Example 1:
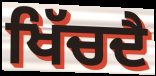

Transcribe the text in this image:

ਖਿੱਚਦੈ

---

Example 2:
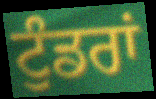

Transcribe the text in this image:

ਟੁੰਡਰਾਂ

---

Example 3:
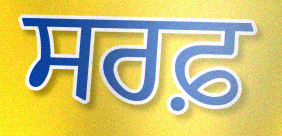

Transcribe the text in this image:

ਸਰਫ਼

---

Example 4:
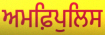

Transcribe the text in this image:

ਅਮਫ਼ਿਪੁਲਿਸ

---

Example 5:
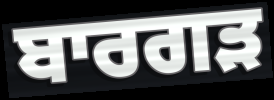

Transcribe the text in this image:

ਬਾਰਗੜ